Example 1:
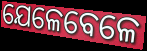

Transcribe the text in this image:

ଯେଳେବେଳେ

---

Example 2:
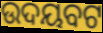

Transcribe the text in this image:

ଉଦୟବଟ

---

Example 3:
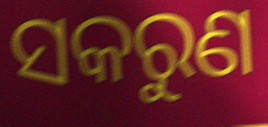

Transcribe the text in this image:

ସକରୁଣ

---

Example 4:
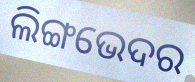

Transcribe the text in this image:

ଲିଙ୍ଗଭେଦର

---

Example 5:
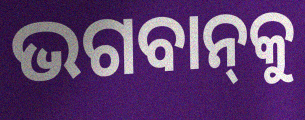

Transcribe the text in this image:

ଭଗବାନ୍‌କୁ